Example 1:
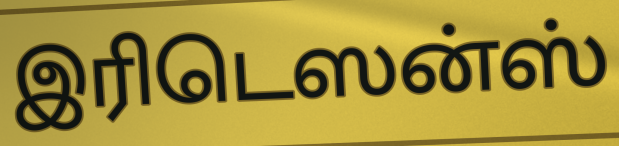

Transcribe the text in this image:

இரிடெஸன்ஸ்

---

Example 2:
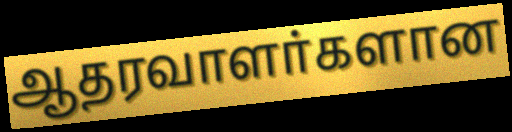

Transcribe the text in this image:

ஆதரவாளர்களான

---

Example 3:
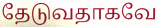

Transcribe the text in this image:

தேடுவதாகவே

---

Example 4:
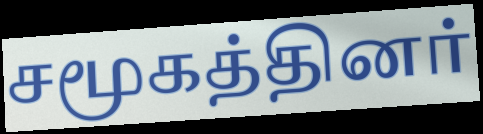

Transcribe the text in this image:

சமூகத்தினர்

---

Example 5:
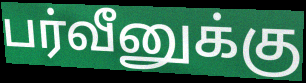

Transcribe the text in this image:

பர்வீனுக்கு